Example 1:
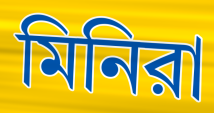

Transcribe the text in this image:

মিনিরা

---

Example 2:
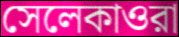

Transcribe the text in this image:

সেলেকাওরা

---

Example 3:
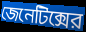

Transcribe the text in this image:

জেনেটিক্সের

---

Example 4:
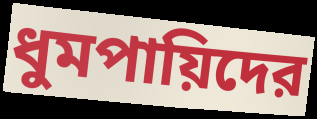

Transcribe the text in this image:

ধুমপায়িদের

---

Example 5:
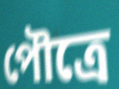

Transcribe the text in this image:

পৌত্রে